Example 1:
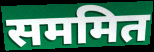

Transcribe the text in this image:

सममित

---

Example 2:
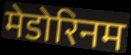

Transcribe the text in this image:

मेडोरिनम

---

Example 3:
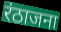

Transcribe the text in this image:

रंठाजना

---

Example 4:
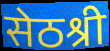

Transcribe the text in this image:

सेठश्री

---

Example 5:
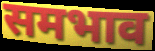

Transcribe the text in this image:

समभाव